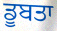
ਡੂਬਤਾ